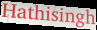
Hathisingh